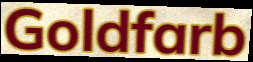
Goldfarb